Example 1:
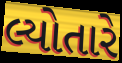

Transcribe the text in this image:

લ્યોતારે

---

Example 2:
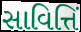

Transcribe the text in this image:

સાવિત્તિં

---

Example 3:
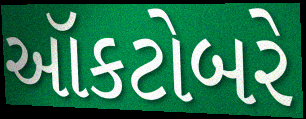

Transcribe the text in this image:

ઑકટોબરે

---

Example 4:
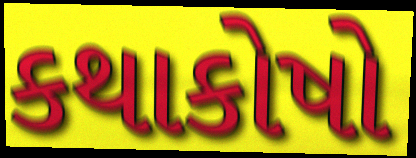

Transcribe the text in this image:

કથાકોષો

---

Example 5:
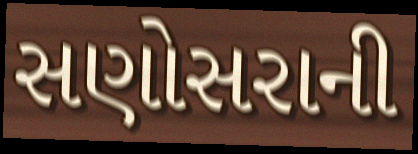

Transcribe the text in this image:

સણોસરાની